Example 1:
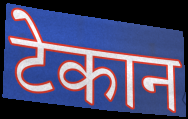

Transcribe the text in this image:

टेकान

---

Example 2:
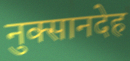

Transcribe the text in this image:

नुक्सानदेह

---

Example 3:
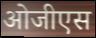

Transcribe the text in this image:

ओजीएस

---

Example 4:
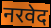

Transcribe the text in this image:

नरवेद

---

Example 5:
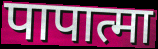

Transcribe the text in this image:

पापात्मा